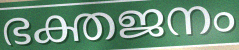
ഭക്തജനം